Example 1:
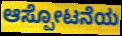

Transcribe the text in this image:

ಆಸ್ಪೋಟನೆಯ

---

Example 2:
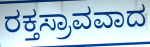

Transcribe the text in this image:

ರಕ್ತಸ್ರಾವವಾದ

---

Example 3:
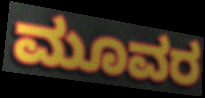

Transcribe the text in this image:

ಮೂವರ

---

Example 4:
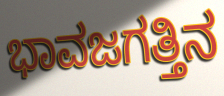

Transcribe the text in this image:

ಭಾವಜಗತ್ತಿನ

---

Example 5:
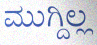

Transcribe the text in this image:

ಮುಗ್ದಿಲ್ಲ